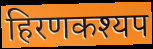
हिरणकश्यप